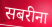
सबरीना